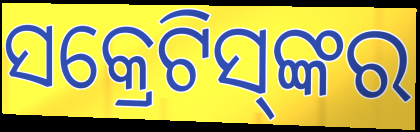
ସକ୍ରେଟିସ୍‌ଙ୍କର